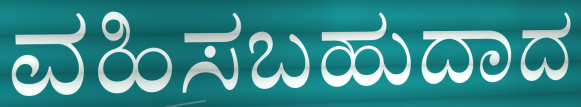
ವಹಿಸಬಹುದಾದ